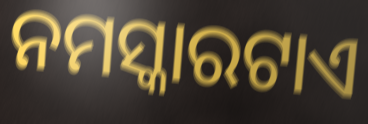
ନମସ୍କାରଟାଏ